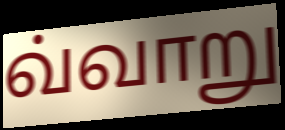
வ்வாறு